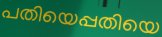
പതിയെപ്പതിയെ